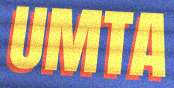
UMTA